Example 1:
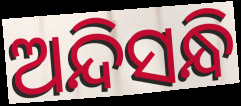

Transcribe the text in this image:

ଅନ୍ଦିସନ୍ଧି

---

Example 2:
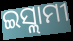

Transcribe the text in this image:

ଇସ୍ଲାମୀ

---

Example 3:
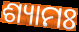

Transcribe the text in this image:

ଶ୍ୟାମଃ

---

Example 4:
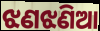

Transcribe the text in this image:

ଝଣଝଣିଆ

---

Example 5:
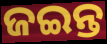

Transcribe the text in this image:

ଜଇନ୍ତ